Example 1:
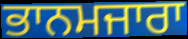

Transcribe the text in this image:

ਭਾਨਮਜਾਰਾ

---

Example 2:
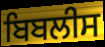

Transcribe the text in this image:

ਬਿਬਲੀਸ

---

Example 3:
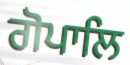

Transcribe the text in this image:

ਗੋਪਾਲਿ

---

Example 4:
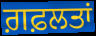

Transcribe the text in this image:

ਗ਼ਫ਼ਲਤਾਂ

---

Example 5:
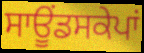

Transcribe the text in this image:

ਸਾਊਂਡਸਕੇਪਾਂ